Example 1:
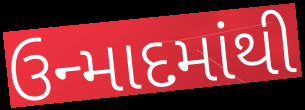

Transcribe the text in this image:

ઉન્માદમાંથી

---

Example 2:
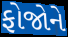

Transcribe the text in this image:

ફોજોને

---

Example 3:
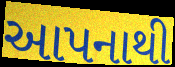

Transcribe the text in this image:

આપનાથી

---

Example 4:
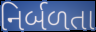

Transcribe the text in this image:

નિર્બળતા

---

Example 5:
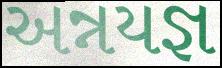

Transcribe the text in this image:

અન્નયજ્ઞ